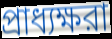
প্রাধ্যক্ষরা